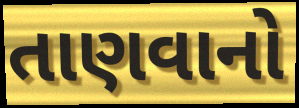
તાણવાનો